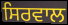
ਸਿਰਵਾਲ